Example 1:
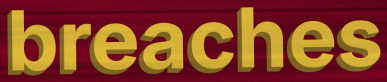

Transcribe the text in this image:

breaches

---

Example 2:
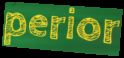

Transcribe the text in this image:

perior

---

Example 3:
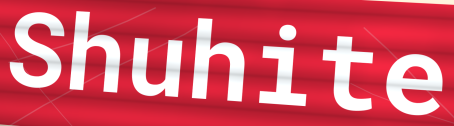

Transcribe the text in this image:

Shuhite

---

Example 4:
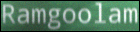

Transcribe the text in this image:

Ramgoolam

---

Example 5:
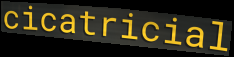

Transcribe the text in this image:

cicatricial